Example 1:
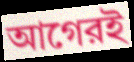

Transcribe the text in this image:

আগেরই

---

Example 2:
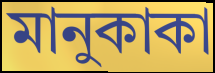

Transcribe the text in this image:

মানুকাকা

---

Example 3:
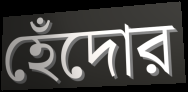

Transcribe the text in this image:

হেঁদোর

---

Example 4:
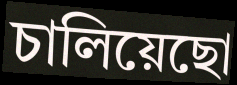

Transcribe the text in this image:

চালিয়েছো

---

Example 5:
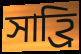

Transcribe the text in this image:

সাহ্রি